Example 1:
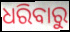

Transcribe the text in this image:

ଧରିବାରୁ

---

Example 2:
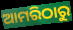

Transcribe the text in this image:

ଆମରିଠାରୁ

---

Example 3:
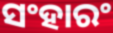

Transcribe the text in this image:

ସଂହାରଂ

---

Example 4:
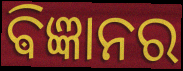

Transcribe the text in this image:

ଵିଜ୍ଞାନର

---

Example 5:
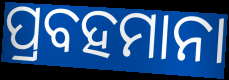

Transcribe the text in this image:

ପ୍ରବହମାନା